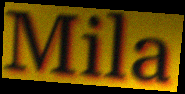
Mila